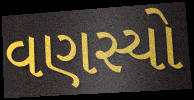
વણસ્યો